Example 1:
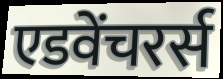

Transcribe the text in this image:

एडवेंचरर्स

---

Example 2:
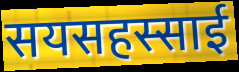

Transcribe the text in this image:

सयसहस्साई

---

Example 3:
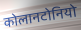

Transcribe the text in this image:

कोलानटोनियो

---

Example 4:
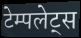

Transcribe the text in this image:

टेम्पलेट्स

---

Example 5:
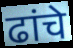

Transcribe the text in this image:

ढांचे